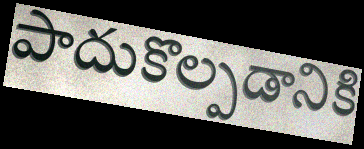
పాదుకొల్పడానికి